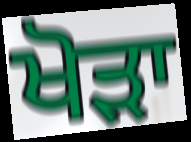
ਖੋੜਾ